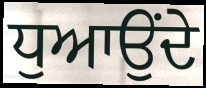
ਧੁਆਉਂਦੇ